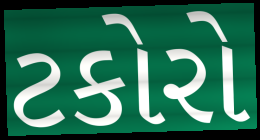
ટકોરો